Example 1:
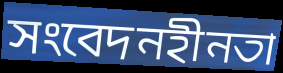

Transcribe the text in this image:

সংবেদনহীনতা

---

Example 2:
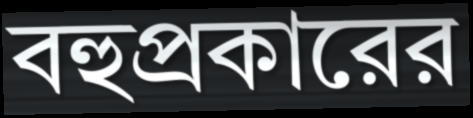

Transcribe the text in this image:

বহুপ্রকারের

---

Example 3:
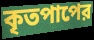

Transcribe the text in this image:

কৃতপাপের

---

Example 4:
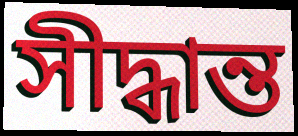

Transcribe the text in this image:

সীদ্ধান্ত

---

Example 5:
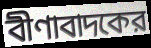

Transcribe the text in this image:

বীণাবাদকের